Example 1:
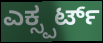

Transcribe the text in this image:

ಎಕ್ಸ್ಪರ್ಟ್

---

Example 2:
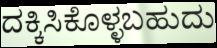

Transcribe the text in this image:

ದಕ್ಕಿಸಿಕೊಳ್ಳಬಹುದು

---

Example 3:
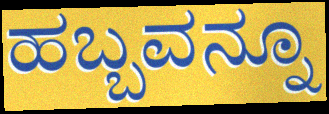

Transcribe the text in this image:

ಹಬ್ಬವನ್ನೂ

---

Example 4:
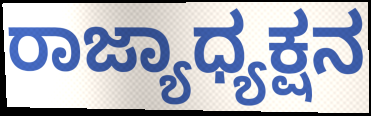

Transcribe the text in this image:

ರಾಜ್ಯಾಧ್ಯಕ್ಷನ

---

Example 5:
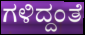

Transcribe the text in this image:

ಗಳಿದ್ದಂತೆ